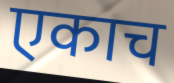
एकाच